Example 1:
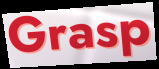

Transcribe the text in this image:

Grasp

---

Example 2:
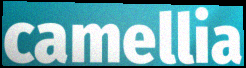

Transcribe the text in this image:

camellia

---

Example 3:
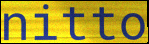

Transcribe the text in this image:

nitto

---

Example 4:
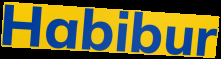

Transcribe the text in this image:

Habibur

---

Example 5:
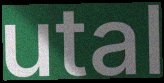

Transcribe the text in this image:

utal